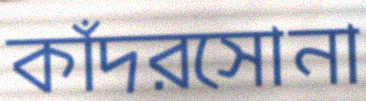
কাঁদরসোনা